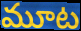
మూట